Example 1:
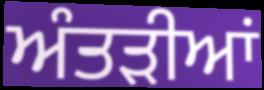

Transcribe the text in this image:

ਅੰਤੜੀਆਂ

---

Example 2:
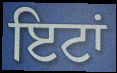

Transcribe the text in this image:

ਇਟਾਂ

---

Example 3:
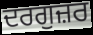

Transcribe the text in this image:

ਦਰਗੁਜ਼ਰ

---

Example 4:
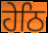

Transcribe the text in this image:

ਹੇਠਿ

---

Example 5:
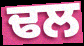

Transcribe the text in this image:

ਢਲ